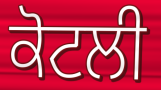
ਕੋਟਲੀ